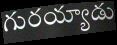
గురయ్యాడు